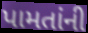
પામતાંની